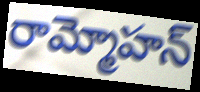
రామ్మోహన్